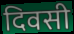
दिवसी